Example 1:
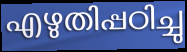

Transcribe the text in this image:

എഴുതിപ്പഠിച്ചു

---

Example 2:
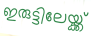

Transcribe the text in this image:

ഇരുട്ടിലേയ്ക്ക്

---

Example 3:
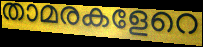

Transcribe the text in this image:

താമരകളേറെ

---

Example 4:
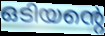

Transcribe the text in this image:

ഒടിയന്റെ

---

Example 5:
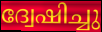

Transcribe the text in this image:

ദ്വേഷിച്ചു